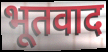
भूतवाद